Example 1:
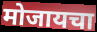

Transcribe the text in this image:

मोजायचा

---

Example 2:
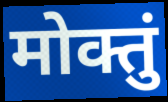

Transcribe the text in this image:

मोक्तुं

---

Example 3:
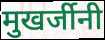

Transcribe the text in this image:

मुखर्जीनी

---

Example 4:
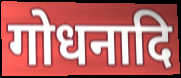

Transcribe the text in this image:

गोधनादि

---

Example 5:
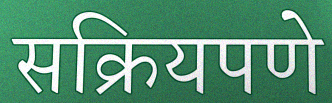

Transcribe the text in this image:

सक्रियपणे